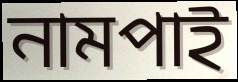
নামপাই